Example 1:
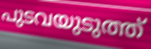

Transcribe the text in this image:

പുടവയുടുത്ത്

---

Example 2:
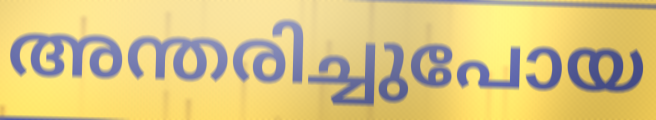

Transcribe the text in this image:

അന്തരിച്ചുപോയ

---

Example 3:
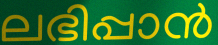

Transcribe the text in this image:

ലഭിപ്പാൻ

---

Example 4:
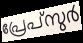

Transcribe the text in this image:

പ്രേപ്സുർ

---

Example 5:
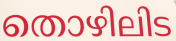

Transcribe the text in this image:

തൊഴിലിട